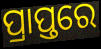
ପ୍ରାପ୍ତରେ